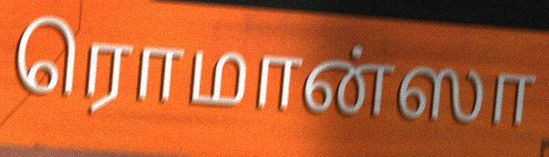
ரொமான்ஸா